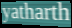
yatharth